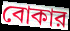
বোকার